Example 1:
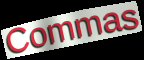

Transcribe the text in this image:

Commas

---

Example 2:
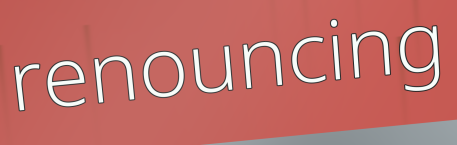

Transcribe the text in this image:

renouncing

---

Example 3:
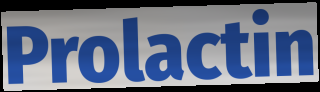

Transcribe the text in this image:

Prolactin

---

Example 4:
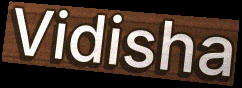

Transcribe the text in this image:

Vidisha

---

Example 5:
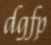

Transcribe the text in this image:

dgfp